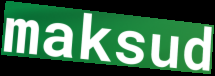
maksud